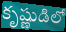
కృష్ణుడిలో